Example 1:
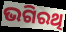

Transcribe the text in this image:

ଭଗିରଥି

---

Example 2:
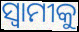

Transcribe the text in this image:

ସ୍ୱାମୀକୁ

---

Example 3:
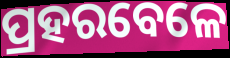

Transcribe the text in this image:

ପ୍ରହରବେଳେ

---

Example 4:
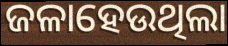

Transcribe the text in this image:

ଜଳାହେଉଥିଲା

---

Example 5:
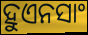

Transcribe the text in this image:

ହୁଏନସାଂ